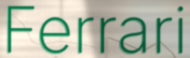
Ferrari